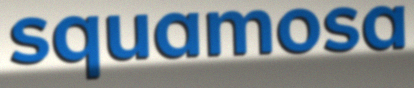
squamosa